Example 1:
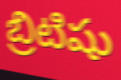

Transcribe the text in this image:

బ్రిటిషు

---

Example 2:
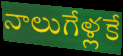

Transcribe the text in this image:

నాలుగేళ్లకే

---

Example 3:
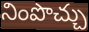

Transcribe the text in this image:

నింపొచ్చు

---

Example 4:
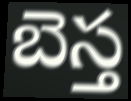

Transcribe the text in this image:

బెస్త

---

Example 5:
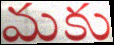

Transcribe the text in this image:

మకు